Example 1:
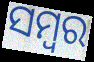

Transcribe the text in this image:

ସମ୍ବର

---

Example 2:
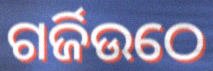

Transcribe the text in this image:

ଗର୍ଜିଉଠେ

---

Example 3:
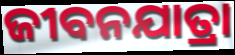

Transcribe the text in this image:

ଜୀବନଯାତ୍ରା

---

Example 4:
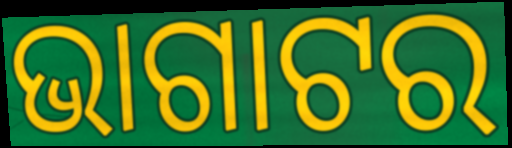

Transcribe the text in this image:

ଭାଗାଟର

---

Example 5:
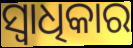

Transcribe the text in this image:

ସ୍ବାଧିକାର